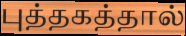
புத்தகத்தால்